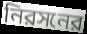
নিরসনের